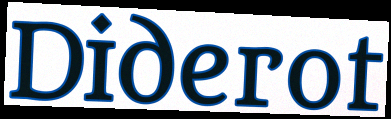
Diderot